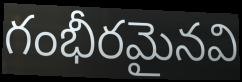
గంభీరమైనవి